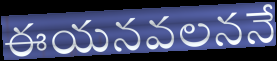
ఈయనవలననే